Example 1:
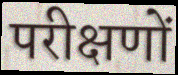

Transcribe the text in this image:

परीक्षणों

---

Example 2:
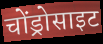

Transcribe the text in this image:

चोंड्रोसाइट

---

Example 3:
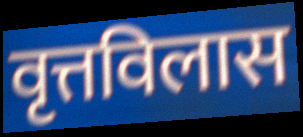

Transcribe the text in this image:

वृत्तविलास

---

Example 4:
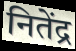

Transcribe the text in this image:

नितेंद्र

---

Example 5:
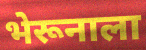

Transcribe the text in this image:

भेरूनाला